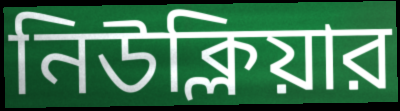
নিউক্লিয়ার